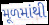
મૂળમાંથી